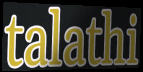
talathi